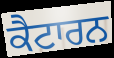
ਕੈਟਾਰਨ